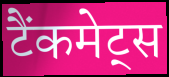
टैंकमेट्स